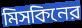
মিসকিনের